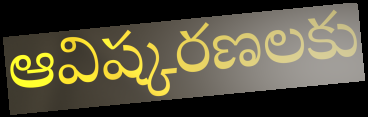
ఆవిష్కరణలకు